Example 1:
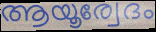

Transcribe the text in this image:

ആയൂര്വേദം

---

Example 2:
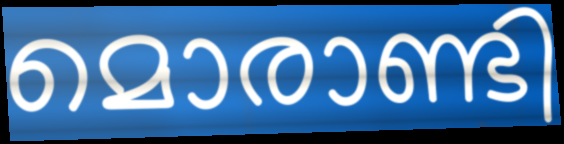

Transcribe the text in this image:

മൊരാണ്ടി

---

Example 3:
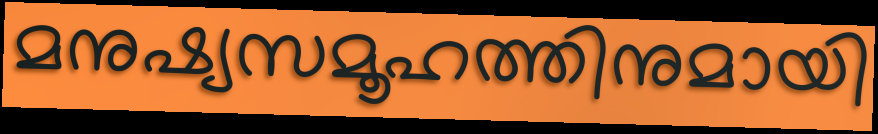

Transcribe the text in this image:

മനുഷ്യസമൂഹത്തിനുമായി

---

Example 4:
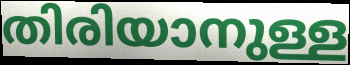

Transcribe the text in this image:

തിരിയാനുള്ള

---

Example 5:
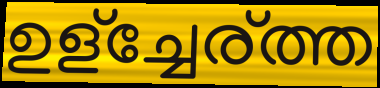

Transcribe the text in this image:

ഉള്ച്ചേര്ത്ത